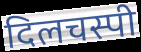
दिलचस्‍पी